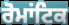
ਰੋਮਾਂਟਿਕ